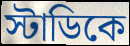
স্টাডিকে